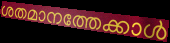
ശതമാനത്തേക്കാൾ